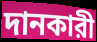
দানকারী